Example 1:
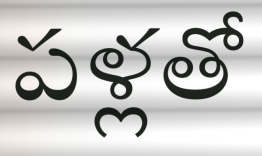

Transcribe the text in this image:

పళ్లతో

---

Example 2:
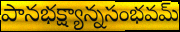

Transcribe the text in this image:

పానభక్ష్యాన్నసంభవమ్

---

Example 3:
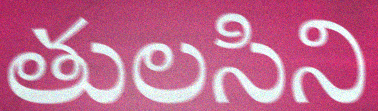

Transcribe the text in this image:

తులసిని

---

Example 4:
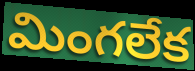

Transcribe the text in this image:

మింగలేక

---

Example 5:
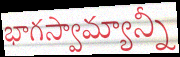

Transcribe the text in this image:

భాగస్వామ్యాన్నీ